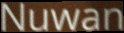
Nuwan